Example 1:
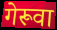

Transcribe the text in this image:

गेरूवा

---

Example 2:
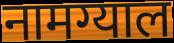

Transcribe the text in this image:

नामग्याल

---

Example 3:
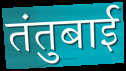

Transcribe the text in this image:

तंतुबाई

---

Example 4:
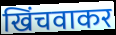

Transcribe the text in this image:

खिंचवाकर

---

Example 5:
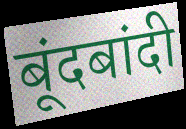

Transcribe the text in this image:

बूंदबांदी